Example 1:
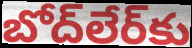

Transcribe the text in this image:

బోద్‌లేర్‌కు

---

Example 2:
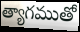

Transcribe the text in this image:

త్యాగముతో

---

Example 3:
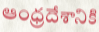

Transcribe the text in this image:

ఆంధ్రదేశానికి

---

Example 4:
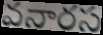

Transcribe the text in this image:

వనారస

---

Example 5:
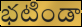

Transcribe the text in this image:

భటిండా